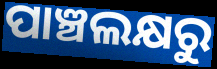
ପାଞ୍ଚଲକ୍ଷରୁ